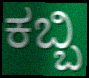
ಕಬ್ಬಿ